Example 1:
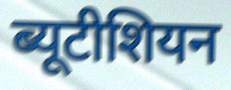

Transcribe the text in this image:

ब्यूटीशियन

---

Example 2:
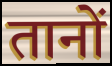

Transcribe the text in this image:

तानों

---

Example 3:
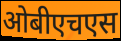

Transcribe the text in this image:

ओबीएचएस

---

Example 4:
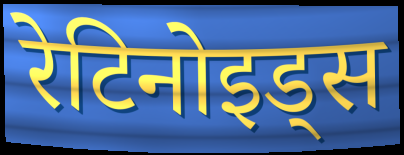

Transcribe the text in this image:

रेटिनोइड्स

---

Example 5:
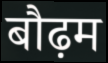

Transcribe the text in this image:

बौढ़म